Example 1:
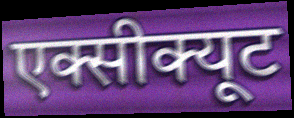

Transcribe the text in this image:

एक्सीक्यूट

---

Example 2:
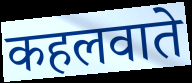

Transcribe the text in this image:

कहलवाते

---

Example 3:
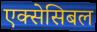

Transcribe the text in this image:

एक्सेसिबल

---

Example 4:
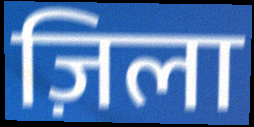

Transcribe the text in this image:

ज़िला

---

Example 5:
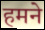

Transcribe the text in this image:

हमने